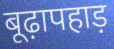
बूढ़ापहाड़